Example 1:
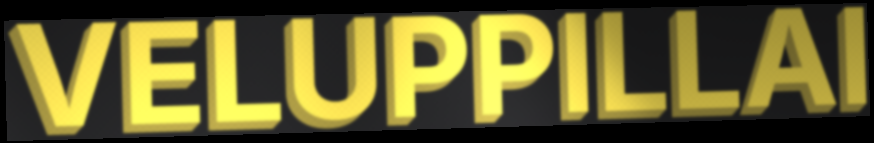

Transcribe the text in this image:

VELUPPILLAI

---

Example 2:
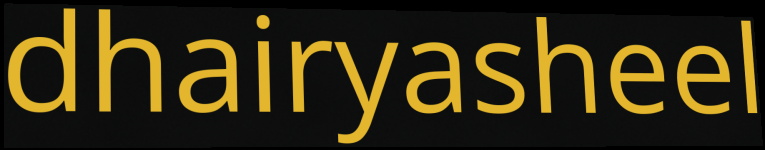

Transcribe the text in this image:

dhairyasheel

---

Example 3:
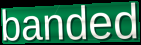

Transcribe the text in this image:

banded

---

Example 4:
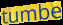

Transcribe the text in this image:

tumbe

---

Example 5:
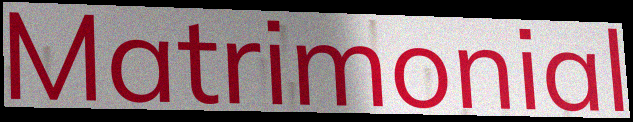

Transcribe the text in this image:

Matrimonial